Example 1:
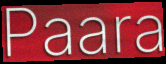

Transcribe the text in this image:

Paara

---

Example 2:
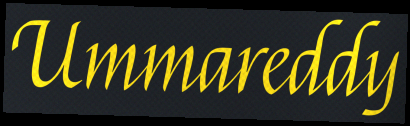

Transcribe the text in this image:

Ummareddy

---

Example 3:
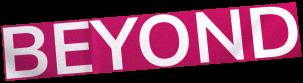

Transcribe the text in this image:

BEYOND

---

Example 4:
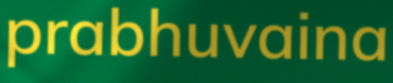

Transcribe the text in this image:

prabhuvaina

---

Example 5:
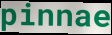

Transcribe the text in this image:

pinnae